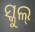
ସ୍କୁଲ୍